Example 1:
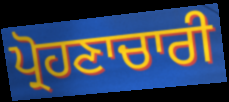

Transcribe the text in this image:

ਪ੍ਰੋਹਣਾਚਾਰੀ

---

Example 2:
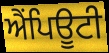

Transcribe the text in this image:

ਐਂਪਿਊਟੀ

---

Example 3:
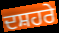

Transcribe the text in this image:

ਦਸ਼ਹਰੇ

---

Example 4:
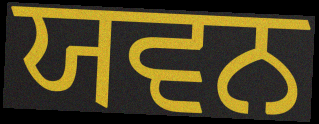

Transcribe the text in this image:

ਯਵਨ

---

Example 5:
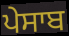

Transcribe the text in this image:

ਪੇਸਾਬ